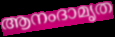
ആനംദാമൃത